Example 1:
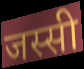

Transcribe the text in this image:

जस्सी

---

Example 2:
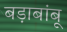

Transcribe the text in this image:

बड़ाबांबू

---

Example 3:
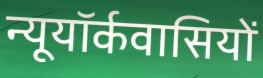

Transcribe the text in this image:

न्यूयॉर्कवासियों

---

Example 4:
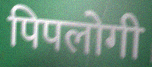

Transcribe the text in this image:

पिपलोगी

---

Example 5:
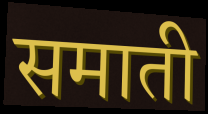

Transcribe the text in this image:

समाती